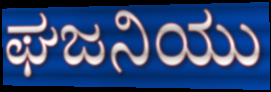
ಘಜನಿಯು